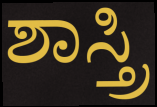
ಶಾಸ್ತ್ರಿ